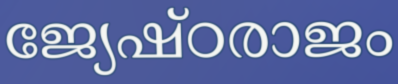
ജ്യേഷ്ഠരാജം